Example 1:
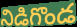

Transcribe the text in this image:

నిడిగొండ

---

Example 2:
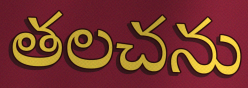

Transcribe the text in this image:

తలచను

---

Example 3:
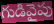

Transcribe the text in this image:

గుడివైపు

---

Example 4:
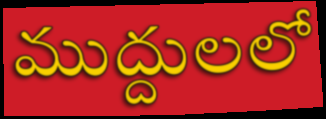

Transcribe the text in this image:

ముద్దులలో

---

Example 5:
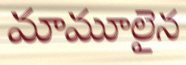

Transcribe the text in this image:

మామూలైన